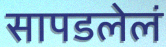
सापडलेलं